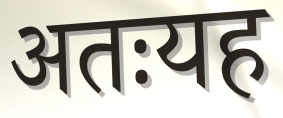
अतःयह